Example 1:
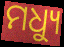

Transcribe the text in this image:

ମଧ୍ୟୁ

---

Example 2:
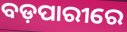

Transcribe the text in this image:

ବଡ଼ପାରୀରେ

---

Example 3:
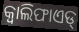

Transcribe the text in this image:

କ୍ୱାଲିଫାଏଡ୍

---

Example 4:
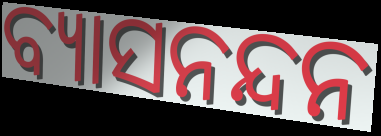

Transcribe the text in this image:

ବ୍ୟାସନନ୍ଦନ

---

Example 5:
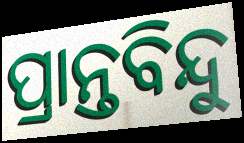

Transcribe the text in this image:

ପ୍ରାନ୍ତବିନ୍ଦୁ